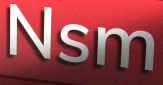
Nsm